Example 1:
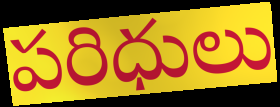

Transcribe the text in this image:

పరిధులు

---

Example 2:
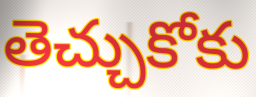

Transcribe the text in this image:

తెచ్చుకోకు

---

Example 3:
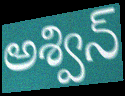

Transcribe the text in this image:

అశ్విన్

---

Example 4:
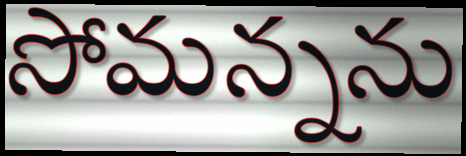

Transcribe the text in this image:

సోమన్నను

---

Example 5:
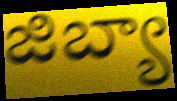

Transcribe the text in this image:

జిబ్యా